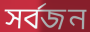
সর্বজন